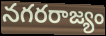
నగరరాజ్యం